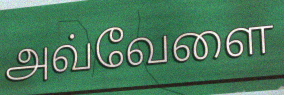
அவ்வேளை